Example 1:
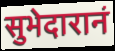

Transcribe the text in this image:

सुभेदारानं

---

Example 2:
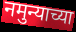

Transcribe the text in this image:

नमुन्याच्या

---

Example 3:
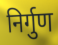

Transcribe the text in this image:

निर्गुण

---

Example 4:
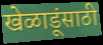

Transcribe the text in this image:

खेळाडूंसाठी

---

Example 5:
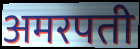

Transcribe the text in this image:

अमरपती